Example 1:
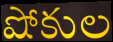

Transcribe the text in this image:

షోకుల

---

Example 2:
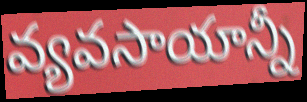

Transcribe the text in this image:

వ్యవసాయాన్నీ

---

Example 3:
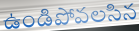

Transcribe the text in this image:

ఉండిపోవలసిన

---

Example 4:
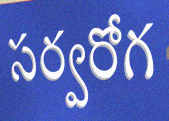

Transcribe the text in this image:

సర్వరోగ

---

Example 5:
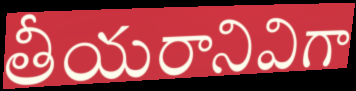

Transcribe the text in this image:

తీయరానివిగా